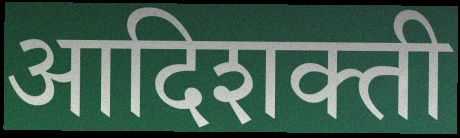
आदिशक्ती